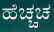
ಹೆಚ್ಚಚ